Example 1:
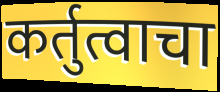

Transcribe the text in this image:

कर्तुत्वाचा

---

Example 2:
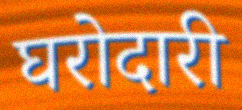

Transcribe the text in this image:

घरोदारी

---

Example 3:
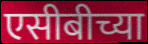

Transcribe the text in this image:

एसीबीच्या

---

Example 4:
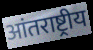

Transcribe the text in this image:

आंतराष्ट्रीय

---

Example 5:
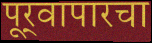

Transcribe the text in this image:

पूर्वापारचा